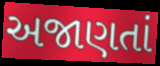
અજાણતાં